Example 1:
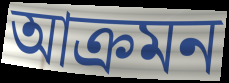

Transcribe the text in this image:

আক্ৰমন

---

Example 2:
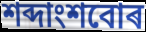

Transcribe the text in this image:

শব্দাংশবোৰ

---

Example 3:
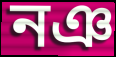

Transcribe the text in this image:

নঞ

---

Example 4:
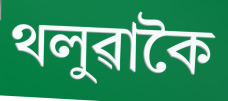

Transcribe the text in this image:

থলুৱাকৈ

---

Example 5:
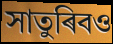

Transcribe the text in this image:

সাতুৰিবও